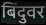
बिंदुवर